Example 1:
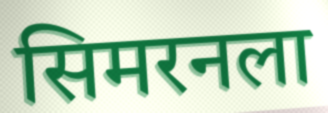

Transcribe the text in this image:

सिमरनला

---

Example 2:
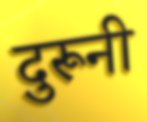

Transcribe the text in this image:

दुरूनी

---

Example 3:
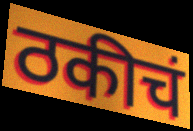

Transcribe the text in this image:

ठकीचं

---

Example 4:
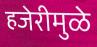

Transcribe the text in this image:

हजेरीमुळे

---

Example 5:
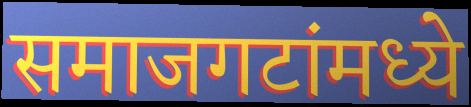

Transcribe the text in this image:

समाजगटांमध्ये